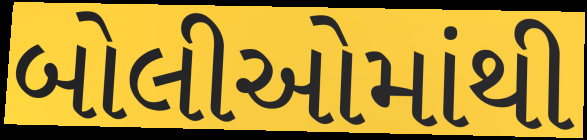
બોલીઓમાંથી